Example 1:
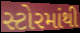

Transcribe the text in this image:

સ્ટોરમાંથી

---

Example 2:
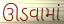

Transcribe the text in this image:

ઊડવામાં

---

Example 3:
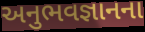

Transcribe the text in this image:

અનુભવજ્ઞાનના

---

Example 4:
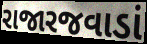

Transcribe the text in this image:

રાજારજવાડાં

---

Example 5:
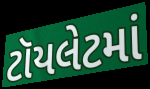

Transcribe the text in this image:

ટૉયલેટમાં